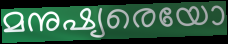
മനുഷ്യരെയോ